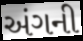
અંગની